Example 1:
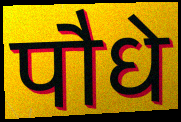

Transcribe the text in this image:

पौधे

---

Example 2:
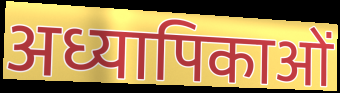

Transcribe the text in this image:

अध्यापिकाओं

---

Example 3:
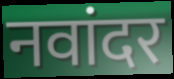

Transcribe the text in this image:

नवांदर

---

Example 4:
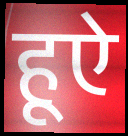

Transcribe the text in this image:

हूऐ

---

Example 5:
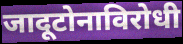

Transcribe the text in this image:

जादूटोनाविरोधी